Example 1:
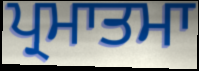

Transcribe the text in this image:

ਪ੍ਰਮਾਤਮਾ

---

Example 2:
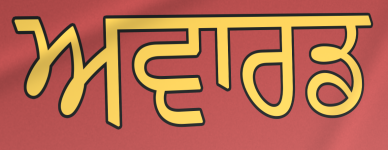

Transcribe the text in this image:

ਅਵਾਰਡ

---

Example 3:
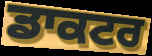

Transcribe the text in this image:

ਡਾਕਟਰ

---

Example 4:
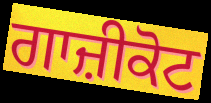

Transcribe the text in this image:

ਗਾਜ਼ੀਕੋਟ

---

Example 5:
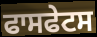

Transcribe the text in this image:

ਫਾਸਫੇਟਸ